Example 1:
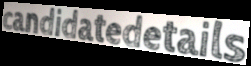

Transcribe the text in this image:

candidatedetails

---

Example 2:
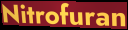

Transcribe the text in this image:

Nitrofuran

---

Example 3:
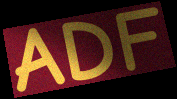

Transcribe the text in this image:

ADF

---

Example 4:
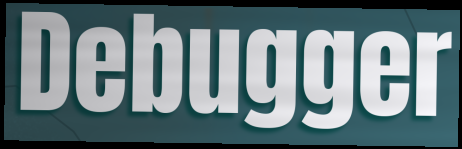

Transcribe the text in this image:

Debugger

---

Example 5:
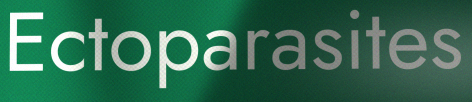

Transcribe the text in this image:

Ectoparasites